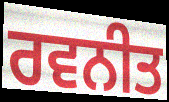
ਰਵਨੀਤ